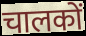
चालकों